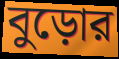
বুড়োর